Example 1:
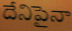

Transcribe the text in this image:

దేనిపైనా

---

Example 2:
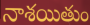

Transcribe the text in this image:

నాశయితుం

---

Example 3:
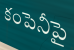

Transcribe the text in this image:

కంపెనీపై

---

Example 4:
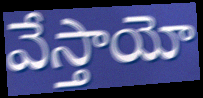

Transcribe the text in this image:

వేస్తాయో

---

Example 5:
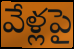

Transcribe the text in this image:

వేళ్లపై